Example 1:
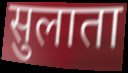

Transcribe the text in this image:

सुलाता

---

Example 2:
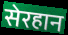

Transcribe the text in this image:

सेरहान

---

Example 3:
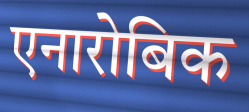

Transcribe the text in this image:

एनारोबिक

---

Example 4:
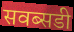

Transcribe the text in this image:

सवब्सडी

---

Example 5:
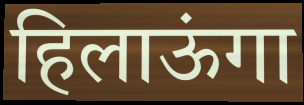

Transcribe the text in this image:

हिलाऊंगा